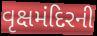
વૃક્ષમંદિરની